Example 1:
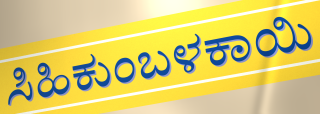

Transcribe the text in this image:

ಸಿಹಿಕುಂಬಳಕಾಯಿ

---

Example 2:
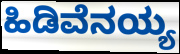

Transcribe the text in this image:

ಹಿಡಿವೆನಯ್ಯ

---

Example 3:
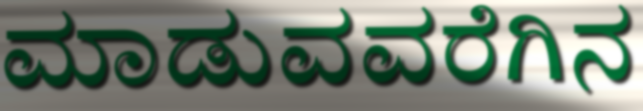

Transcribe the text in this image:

ಮಾಡುವವರೆಗಿನ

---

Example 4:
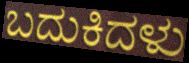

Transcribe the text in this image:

ಬದುಕಿದಳು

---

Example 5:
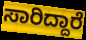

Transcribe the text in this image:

ಸಾರಿದ್ದಾರೆ